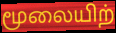
மூலையிற்